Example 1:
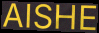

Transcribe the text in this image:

AISHE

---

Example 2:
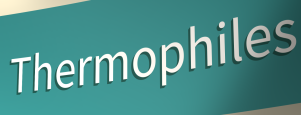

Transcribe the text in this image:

Thermophiles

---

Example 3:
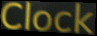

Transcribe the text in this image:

Clock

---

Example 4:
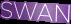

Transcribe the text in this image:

SWAN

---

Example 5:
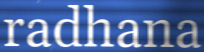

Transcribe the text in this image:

radhana